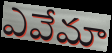
ఎవేమా